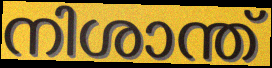
നിശാന്ത്